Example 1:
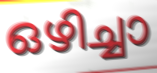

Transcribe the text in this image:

ഒഴിച്ചാ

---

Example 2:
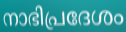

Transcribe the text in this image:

നാഭിപ്രദേശം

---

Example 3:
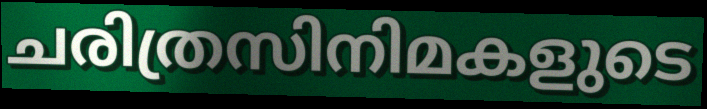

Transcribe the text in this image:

ചരിത്രസിനിമകളുടെ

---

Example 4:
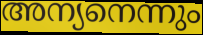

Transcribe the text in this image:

അന്യനെന്നും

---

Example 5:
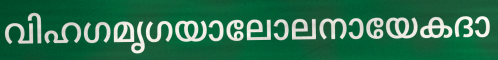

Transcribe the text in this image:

വിഹഗമൃഗയാലോലനായേകദാ